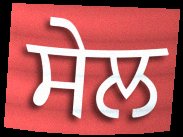
ਸੇਲ